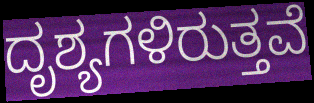
ದೃಶ್ಯಗಳಿರುತ್ತವೆ